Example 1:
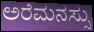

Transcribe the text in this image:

ಅರೆಮನಸ್ಸು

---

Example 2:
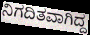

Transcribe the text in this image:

ನಿಗದಿತವಾಗಿದ್ದ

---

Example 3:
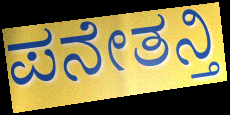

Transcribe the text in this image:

ಪನೇತನ್ತಿ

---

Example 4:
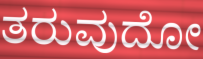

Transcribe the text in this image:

ತರುವುದೋ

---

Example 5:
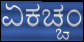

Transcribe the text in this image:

ಏಕಚ್ಚಂ